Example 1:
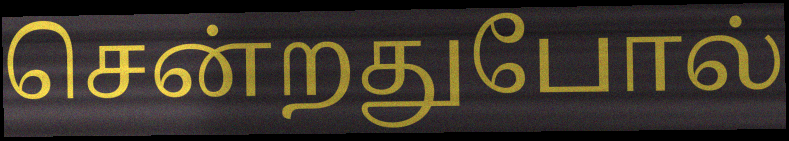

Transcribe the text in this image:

சென்றதுபோல்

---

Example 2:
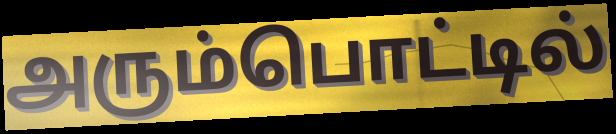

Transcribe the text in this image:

அரும்பொட்டில்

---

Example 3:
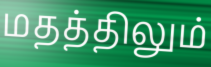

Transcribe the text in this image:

மதத்திலும்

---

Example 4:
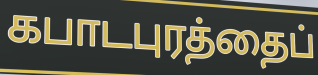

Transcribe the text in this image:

கபாடபுரத்தைப்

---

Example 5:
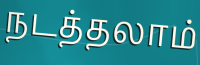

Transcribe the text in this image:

நடத்தலாம்